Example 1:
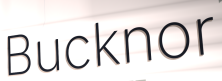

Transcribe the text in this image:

Bucknor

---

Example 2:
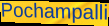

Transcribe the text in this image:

Pochampalli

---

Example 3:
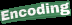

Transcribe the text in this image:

Encoding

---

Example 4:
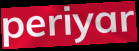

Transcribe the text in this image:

periyar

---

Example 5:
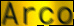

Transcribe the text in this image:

Arco